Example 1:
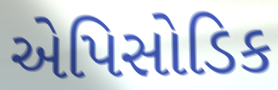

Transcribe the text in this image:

એપિસોડિક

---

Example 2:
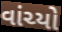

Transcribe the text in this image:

વાંચ્યો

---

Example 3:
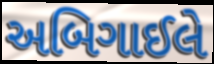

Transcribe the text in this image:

અબિગાઈલે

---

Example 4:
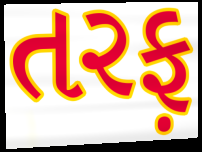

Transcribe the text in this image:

તરફ઼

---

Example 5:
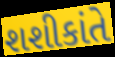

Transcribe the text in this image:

શશીકાંતે